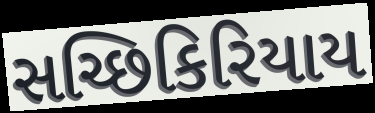
સચ્છિકિરિયાય